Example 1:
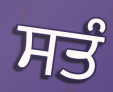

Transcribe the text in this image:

ਸਤੰ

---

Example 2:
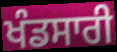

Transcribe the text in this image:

ਖੰਡਸਾਰੀ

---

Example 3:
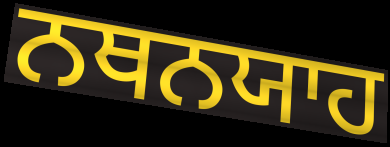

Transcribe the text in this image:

ਨਥਨਯਾਹ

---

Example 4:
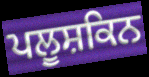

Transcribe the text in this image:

ਪਲੂਸ਼ਕਿਨ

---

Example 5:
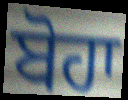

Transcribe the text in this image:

ਬੋਹਾ